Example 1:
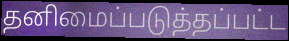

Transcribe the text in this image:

தனிமைப்படுத்தப்பட்ட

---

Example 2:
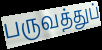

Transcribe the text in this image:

பருவத்துப்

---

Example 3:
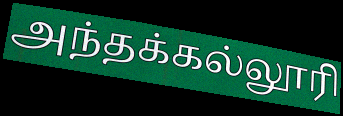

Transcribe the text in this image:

அந்தக்கல்லூரி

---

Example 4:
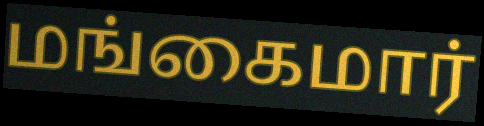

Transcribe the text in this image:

மங்கைமார்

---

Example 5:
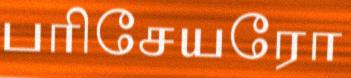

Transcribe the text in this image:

பரிசேயரோ